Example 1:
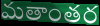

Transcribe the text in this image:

మతాంతర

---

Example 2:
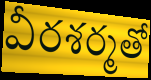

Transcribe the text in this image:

వీరశర్మతో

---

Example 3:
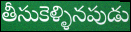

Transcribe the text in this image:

తీసుకెళ్ళినపుడు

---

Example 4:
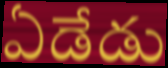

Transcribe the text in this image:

ఏడేడు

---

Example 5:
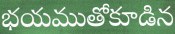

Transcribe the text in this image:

భయముతోకూడిన